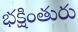
భక్షింతురు